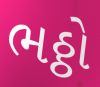
ભઠ્ઠો